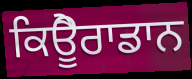
ਕਿਊੈਰਾਡਾਨ